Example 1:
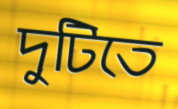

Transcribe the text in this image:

দুটিতে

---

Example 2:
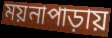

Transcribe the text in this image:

ময়নাপাড়ায়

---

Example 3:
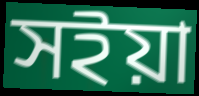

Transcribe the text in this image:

সইয়া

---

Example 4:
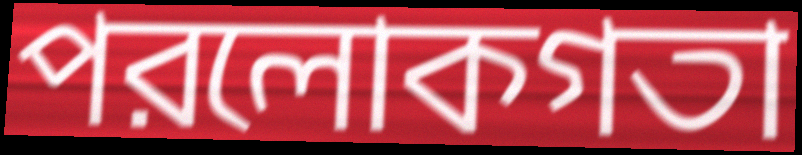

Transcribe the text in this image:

পরলোকগতা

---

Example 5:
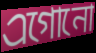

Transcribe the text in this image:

এগোনো